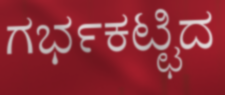
ಗರ್ಭಕಟ್ಟಿದ